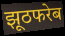
झूठफरेब